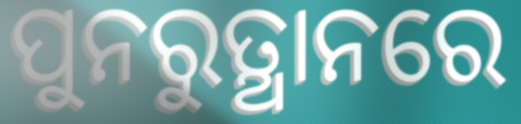
ପୁନରୁତ୍ଥାନରେ